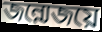
জন্মেজয়ে